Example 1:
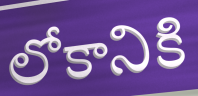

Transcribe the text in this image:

లోకానికి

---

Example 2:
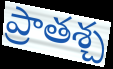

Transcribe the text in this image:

ప్రాతశ్చ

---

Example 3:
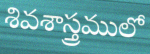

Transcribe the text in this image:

శివశాస్త్రములో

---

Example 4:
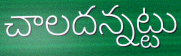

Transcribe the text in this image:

చాలదన్నట్టు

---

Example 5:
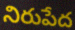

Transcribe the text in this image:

నిరుపేద